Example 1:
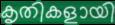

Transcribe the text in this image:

കൃതികളായി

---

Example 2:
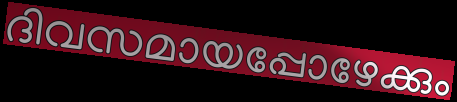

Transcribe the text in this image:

ദിവസമായപ്പോഴേക്കും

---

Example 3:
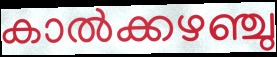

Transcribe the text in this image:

കാൽക്കഴഞ്ചു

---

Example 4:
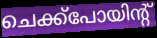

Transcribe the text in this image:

ചെക്ക്പോയിന്റ്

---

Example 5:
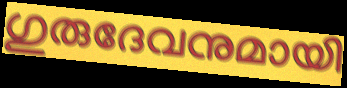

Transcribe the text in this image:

ഗുരുദേവനുമായി